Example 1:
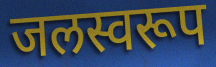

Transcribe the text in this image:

जलस्वरूप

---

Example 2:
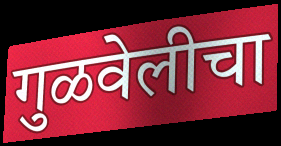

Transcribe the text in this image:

गुळवेलीचा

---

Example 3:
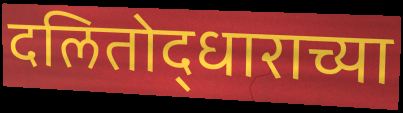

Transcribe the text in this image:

दलितोद्धाराच्या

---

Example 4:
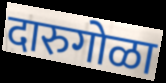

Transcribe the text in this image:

दारुगोळा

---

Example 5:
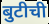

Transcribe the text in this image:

बुटीची